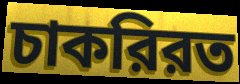
চাকরিরত